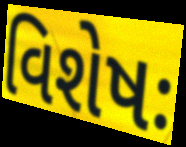
વિશેષઃ